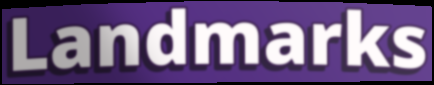
Landmarks